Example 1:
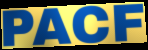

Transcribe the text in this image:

PACF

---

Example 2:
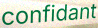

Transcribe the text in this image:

confidant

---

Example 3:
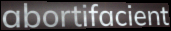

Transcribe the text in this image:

abortifacient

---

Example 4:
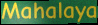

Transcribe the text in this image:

Mahalaya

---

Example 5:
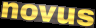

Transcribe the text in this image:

novus